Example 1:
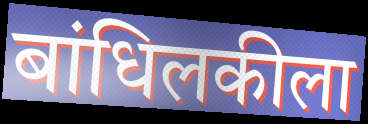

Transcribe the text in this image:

बांधिलकीला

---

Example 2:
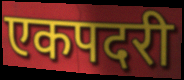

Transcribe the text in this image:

एकपदरी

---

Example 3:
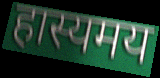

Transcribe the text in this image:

हास्यमय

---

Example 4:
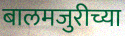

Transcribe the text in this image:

बालमजुरीच्या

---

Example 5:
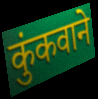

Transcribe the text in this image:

कुंकवाने